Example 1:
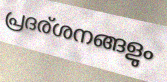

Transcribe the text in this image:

പ്രദര്ശനങ്ങളും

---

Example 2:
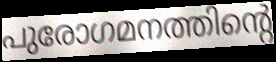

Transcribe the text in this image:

പുരോഗമനത്തിന്റെ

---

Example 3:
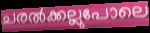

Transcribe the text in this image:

ചരൽക്കല്ലുപോലെ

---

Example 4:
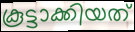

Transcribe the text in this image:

കൂട്ടാക്കിയത്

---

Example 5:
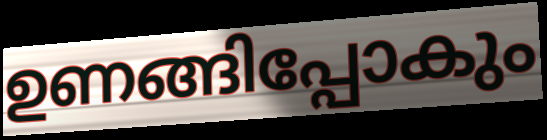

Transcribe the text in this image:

ഉണങ്ങിപ്പോകും